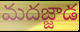
మదజ్జాడ